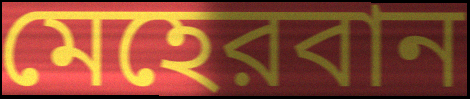
মেহেরবান